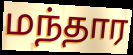
மந்தார